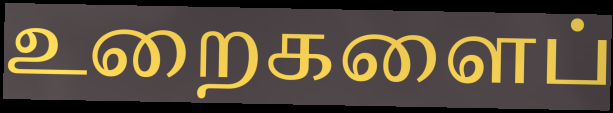
உறைகளைப்